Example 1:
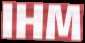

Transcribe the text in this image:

IHM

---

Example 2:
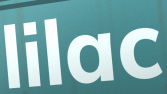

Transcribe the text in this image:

lilac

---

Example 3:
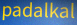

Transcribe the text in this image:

padalkal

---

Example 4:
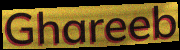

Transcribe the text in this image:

Ghareeb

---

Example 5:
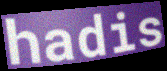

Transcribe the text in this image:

hadis